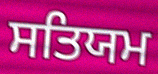
ਸਤਿਯਮ